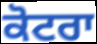
ਕੋਟਰਾ